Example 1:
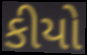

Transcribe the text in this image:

કીયો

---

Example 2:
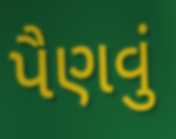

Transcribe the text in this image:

પૈણવું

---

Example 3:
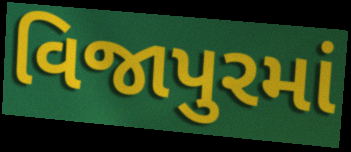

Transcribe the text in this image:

વિજાપુરમાં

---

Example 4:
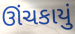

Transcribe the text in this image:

ઊંચકાયું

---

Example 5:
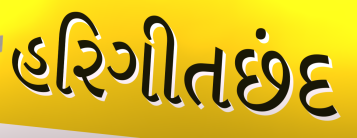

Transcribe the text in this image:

હરિગીતછંદ